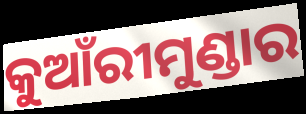
କୁଆଁରୀମୁଣ୍ଡାର